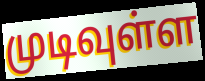
முடிவுள்ள